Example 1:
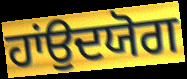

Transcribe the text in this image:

ਹਾਂਉਦਯੋਗ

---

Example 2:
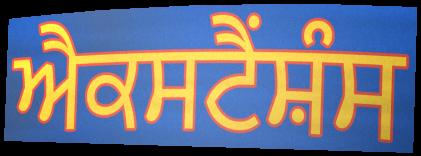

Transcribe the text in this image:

ਐਕਸਟੈਂਸ਼ੰਸ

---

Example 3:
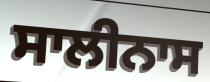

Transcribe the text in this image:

ਸਾਲੀਨਾਸ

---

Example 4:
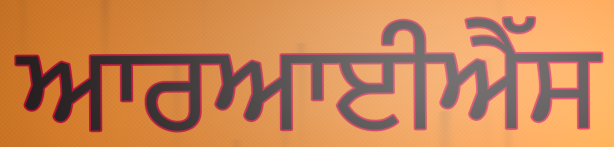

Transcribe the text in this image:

ਆਰਆਈਐੱਸ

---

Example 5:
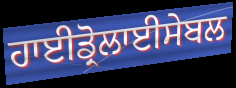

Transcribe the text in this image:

ਹਾਈਡ੍ਰੋਲਾਈਸੇਬਲ